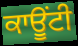
ਕਾਊਂਟੀ